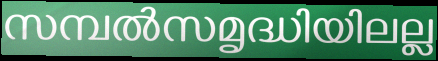
സമ്പൽസമൃദ്ധിയിലല്ല